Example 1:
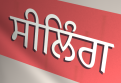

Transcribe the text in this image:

ਸੀਲਿੰਗ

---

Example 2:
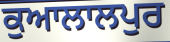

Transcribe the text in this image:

ਕੁਆਲਾਲਪੁਰ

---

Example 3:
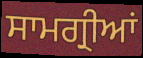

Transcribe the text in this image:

ਸਾਮਗ੍ਰੀਆਂ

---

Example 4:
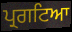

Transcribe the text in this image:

ਪ੍ਰਗਟਿਆ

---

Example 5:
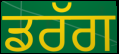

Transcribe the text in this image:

ਡਰੱਗ